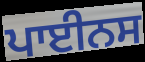
ਪਾਈਨਸ